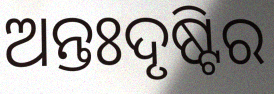
ଅନ୍ତଃଦୃଷ୍ଟିର